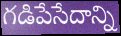
గడిపేసేదాన్ని